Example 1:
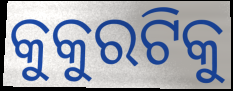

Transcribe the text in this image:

କୁକୁରଟିକୁ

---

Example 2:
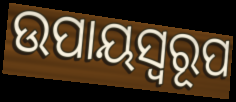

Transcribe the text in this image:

ଉପାୟସ୍ୱରୂପ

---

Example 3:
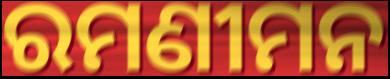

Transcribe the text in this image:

ରମଣୀମନ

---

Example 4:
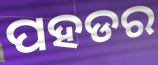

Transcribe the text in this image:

ପହଡର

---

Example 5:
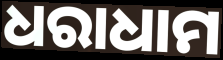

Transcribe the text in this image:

ଧରାଧାମ